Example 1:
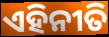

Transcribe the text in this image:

ଏହିନୀତି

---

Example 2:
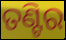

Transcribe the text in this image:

ତଣ୍ଟିର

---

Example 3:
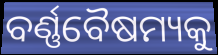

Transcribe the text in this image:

ବର୍ଣ୍ଣବୈଷମ୍ୟକୁ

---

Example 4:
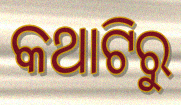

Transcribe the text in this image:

କଥାଟିରୁ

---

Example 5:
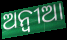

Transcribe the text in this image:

ଅନ୍ବୀଆ